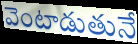
వెంటాడుతునే